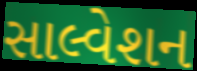
સાલ્વેશન